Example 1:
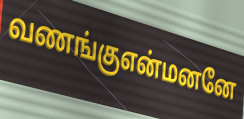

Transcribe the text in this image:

வணங்குஎன்மனனே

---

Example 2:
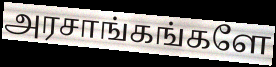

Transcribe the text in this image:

அரசாங்கங்களே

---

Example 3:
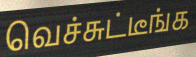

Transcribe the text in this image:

வெச்சுட்டீங்க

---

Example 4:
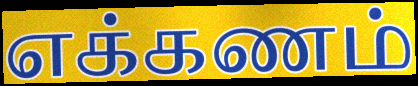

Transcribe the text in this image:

எக்கணம்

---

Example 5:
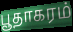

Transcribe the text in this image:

பூதாகரம்